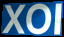
XOI